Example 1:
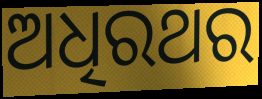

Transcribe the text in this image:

ଅଧିରଥର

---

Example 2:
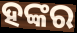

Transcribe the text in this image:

ହଙ୍କର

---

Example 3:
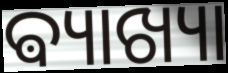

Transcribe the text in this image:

ଵ୍ୟାଖ୍ୟା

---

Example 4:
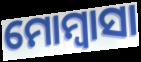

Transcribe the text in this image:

ମୋମ୍ବାସା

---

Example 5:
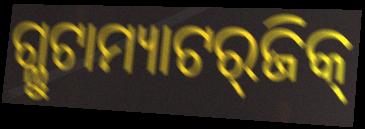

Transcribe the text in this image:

ଗ୍ଲୁଟାମ୍ୟାଟର୍‌ଜିକ୍